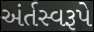
અંર્તસ્વરૂપે